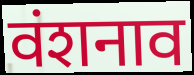
वंशनाव